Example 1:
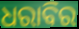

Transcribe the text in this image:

ଧରାବିର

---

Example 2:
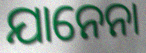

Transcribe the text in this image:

ଯାନେନା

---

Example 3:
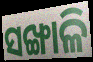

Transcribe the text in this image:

ସଙ୍ଖାଳି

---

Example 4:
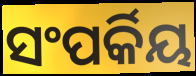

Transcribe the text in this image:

ସଂପର୍କିୟ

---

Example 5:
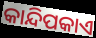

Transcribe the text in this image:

କାନ୍ଦିପକାଏ